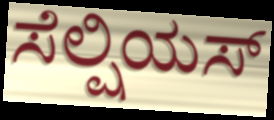
ಸೆಲ್ಷಿಯಸ್